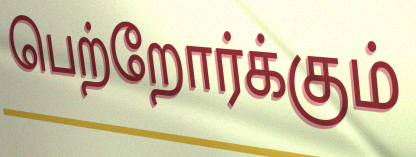
பெற்றோர்க்கும்